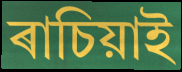
ৰাচিয়াই